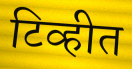
टिव्हीत